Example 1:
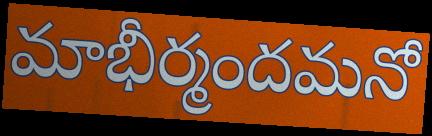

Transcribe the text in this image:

మాభీర్మందమనో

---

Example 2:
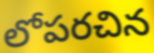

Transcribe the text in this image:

లోపరచిన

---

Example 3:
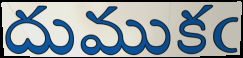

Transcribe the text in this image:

దుముకఁ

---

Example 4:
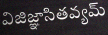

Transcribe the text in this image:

విజిజ్ఞాసితవ్యమ్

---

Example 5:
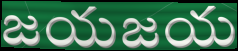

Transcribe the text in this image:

జయజయ